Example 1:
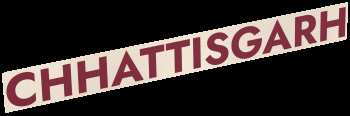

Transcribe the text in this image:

CHHATTISGARH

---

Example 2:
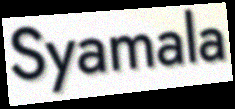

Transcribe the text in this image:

Syamala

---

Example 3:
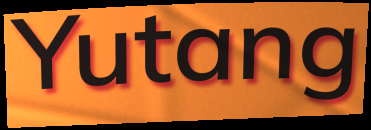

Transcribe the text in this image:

Yutang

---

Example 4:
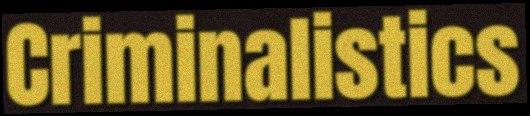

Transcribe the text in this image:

Criminalistics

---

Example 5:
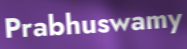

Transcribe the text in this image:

Prabhuswamy